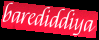
barediddiya